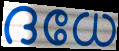
ദധേ